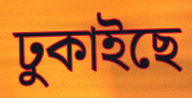
ঢুকাইছে